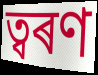
ত্বৰণ